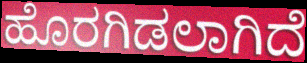
ಹೊರಗಿಡಲಾಗಿದೆ